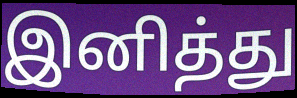
இனித்து